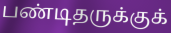
பண்டிதருக்குக்